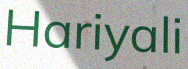
Hariyali